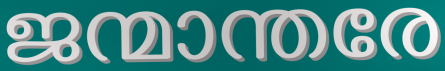
ജന്മാന്തരേ